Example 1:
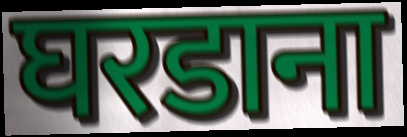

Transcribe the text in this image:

घरडाना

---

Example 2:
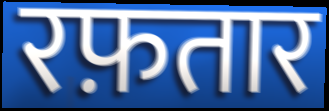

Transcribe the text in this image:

रफ़तार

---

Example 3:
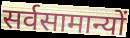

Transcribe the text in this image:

सर्वसामान्यों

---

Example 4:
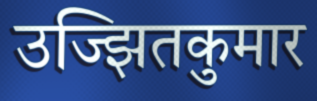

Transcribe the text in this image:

उज्झितकुमार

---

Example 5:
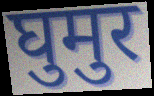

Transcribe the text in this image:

घुमुर